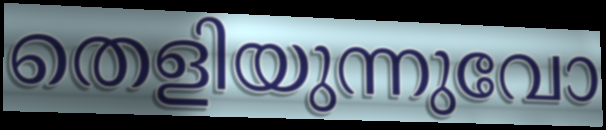
തെളിയുന്നുവോ